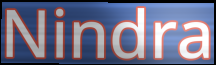
Nindra